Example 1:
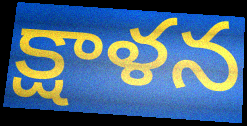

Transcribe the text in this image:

క్షాళన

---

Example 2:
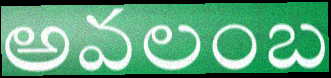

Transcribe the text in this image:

అవలంబ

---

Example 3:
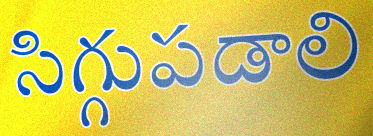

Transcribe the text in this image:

సిగ్గుపడాలి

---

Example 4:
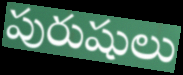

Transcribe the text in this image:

పురుషులు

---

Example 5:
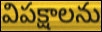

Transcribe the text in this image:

విపక్షాలను